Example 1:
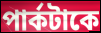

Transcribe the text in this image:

পার্কটাকে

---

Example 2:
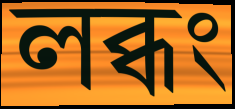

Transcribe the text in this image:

লব্ধং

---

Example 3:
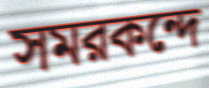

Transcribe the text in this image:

সমরকন্দে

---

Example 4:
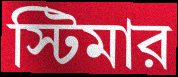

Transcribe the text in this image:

স্টিমার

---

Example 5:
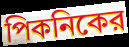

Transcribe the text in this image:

পিকনিকের